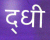
द्धी